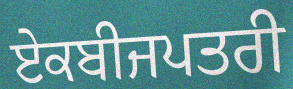
ਏਕਬੀਜਪਤਰੀ